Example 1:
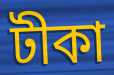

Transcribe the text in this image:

টীকা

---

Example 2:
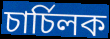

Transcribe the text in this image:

চাৰ্চিলক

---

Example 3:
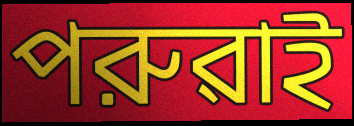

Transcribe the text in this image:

পৰুৱাই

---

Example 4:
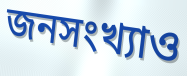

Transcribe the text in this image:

জনসংখ্যাও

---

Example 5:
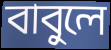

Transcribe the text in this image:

বাবুলে